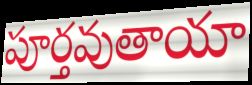
పూర్తవుతాయా